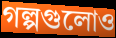
গল্পগুলোও